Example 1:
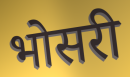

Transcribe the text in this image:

भोसरी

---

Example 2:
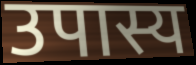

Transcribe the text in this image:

उपास्य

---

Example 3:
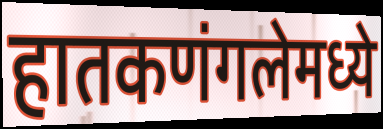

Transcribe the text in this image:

हातकणंगलेमध्ये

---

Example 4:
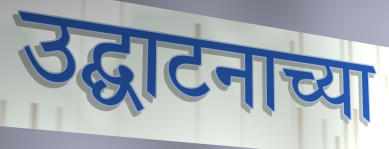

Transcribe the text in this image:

उद्घाटनाच्या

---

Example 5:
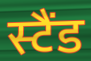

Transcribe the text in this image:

स्टैंड